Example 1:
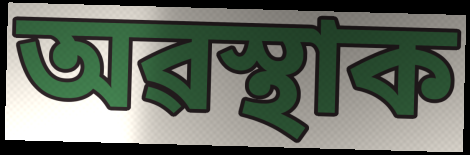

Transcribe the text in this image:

অৱস্থাক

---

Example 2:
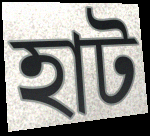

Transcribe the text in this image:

হাট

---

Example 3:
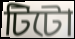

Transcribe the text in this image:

টিটো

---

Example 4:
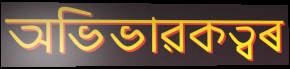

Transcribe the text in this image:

অভিভাৱকত্বৰ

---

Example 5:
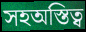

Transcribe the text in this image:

সহঅস্তিত্ব